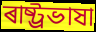
ৰাষ্ট্ৰভাষা